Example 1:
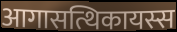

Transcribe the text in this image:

आगासत्थिकायस्स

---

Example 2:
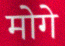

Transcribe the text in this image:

मोगे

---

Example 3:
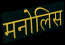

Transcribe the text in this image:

मनोलिस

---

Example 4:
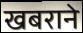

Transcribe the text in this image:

खबराने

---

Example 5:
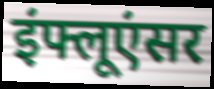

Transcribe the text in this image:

इंफ्लूएंसर